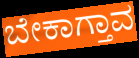
ಬೇಕಾಗ್ತಾವ